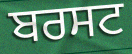
ਬਰਸਟ